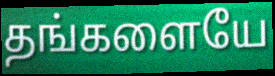
தங்களையே